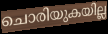
ചൊരിയുകയില്ല